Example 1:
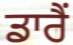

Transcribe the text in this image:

ਡਾਰੈਂ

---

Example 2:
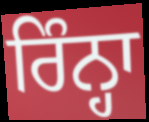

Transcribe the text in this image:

ਰਿੰਨ੍ਹਾ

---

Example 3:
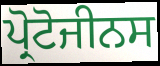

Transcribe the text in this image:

ਪ੍ਰੋਟੋਜੀਨਸ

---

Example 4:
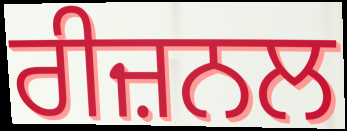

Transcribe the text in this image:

ਰੀਜ਼ਨਲ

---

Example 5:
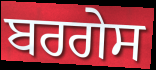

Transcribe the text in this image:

ਬਰਗੇਸ